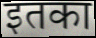
इतका